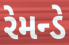
રેમન્ડે